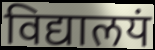
विद्यालयं